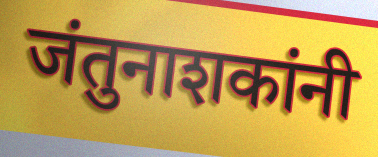
जंतुनाशकांनी